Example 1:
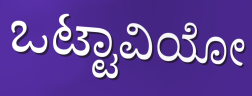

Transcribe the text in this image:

ಒಟ್ಟಾವಿಯೋ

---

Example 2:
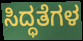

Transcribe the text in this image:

ಸಿದ್ಧತೆಗಳ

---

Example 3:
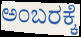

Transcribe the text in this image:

ಅಂಬರಕ್ಕೆ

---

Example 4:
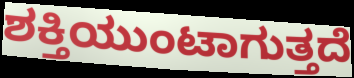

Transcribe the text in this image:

ಶಕ್ತಿಯುಂಟಾಗುತ್ತದೆ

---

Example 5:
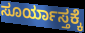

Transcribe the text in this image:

ಸೂರ್ಯಾಸ್ತಕ್ಕೆ